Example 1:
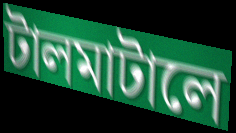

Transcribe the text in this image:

টালমাটালে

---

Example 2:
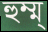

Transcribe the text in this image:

হুম্ম্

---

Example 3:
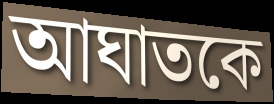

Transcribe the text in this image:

আঘাতকে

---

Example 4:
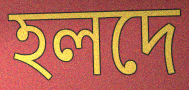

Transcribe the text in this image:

হলদে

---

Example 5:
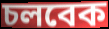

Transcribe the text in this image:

চলবেক